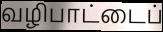
வழிபாட்டைப்